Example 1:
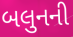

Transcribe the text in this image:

બલુનની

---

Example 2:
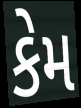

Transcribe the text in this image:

કેમ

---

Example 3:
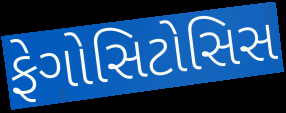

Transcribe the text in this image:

ફેગોસિટોસિસ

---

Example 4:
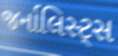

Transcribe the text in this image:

જર્નાલિસ્ટ્સ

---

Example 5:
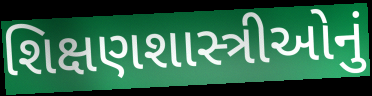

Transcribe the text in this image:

શિક્ષણશાસ્ત્રીઓનું